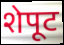
शेपूट